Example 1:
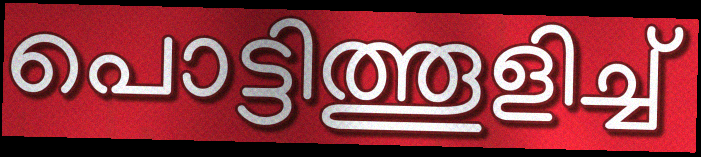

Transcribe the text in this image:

പൊട്ടിത്തൂളിച്ച്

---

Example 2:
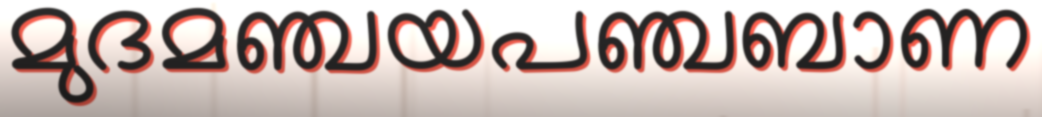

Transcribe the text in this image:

മുദമഞ്ചയപഞ്ചബാണ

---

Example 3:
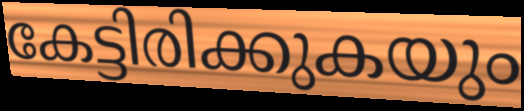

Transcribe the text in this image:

കേട്ടിരിക്കുകയും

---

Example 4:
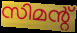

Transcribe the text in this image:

സിമന്റ്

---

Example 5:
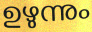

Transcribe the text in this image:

ഉഴുന്നും